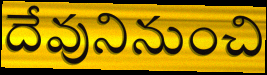
దేవునినుంచి